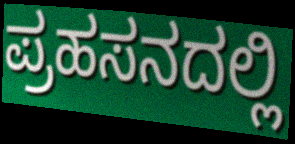
ಪ್ರಹಸನದಲ್ಲಿ